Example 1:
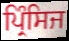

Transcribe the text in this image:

ਪ੍ਰਿੰਸਿਜ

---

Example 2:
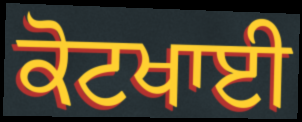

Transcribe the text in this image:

ਕੋਟਖਾਈ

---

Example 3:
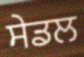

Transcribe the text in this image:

ਸੇਡਲ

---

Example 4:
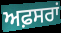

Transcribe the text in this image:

ਅਫ਼ਸਰਾਂ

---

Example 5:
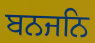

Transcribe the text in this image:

ਬਨਜਨਿ